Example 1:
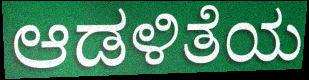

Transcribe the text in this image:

ಆಡಳಿತೆಯ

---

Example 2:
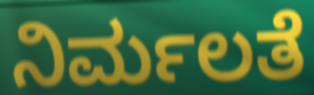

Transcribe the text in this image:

ನಿರ್ಮಲತೆ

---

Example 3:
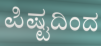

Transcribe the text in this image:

ಪಿಷ್ಟದಿಂದ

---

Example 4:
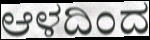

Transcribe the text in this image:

ಆಳದಿಂದ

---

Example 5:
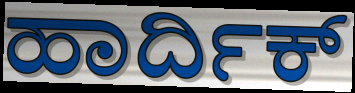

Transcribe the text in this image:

ಹಾರ್ದಿಕ್